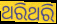
ଥରିଥରି